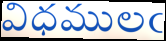
విధములఁ